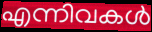
എന്നിവകൾ